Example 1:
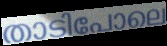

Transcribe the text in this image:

താടിപോലെ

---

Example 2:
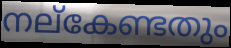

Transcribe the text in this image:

നല്കേണ്ടതും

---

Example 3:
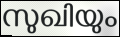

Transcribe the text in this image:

സുഖിയും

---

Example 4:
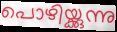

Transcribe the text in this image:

പൊഴിയ്ക്കുന്നു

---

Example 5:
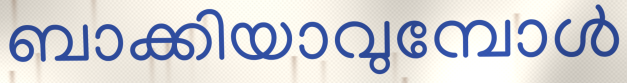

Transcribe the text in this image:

ബാക്കിയാവുമ്പോൾ